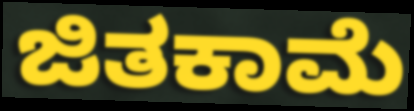
ಜಿತಕಾಮೆ